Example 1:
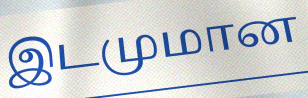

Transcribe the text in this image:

இடமுமான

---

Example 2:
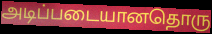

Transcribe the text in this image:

அடிப்படையானதொரு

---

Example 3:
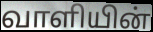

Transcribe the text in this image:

வாளியின்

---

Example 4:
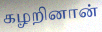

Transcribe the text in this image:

கழறினான்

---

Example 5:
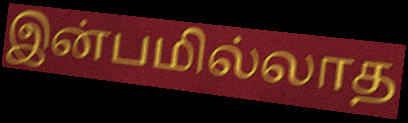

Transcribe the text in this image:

இன்பமில்லாத